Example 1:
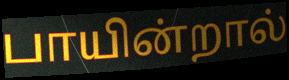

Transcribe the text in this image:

பாயின்றால்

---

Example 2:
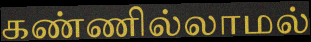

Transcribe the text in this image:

கண்ணில்லாமல்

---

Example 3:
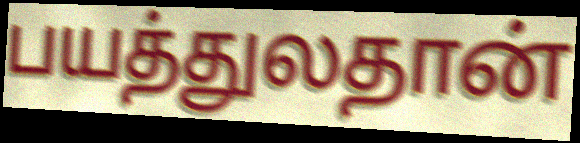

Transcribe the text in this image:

பயத்துலதான்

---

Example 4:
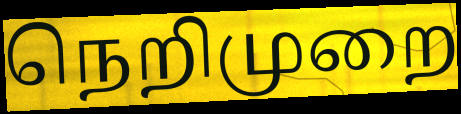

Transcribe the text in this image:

நெறிமுறை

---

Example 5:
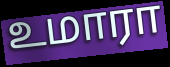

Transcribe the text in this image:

உமாரா